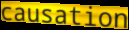
causation